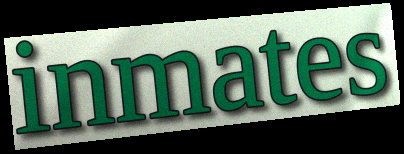
inmates